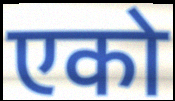
एको